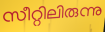
സീറ്റിലിരുന്നു